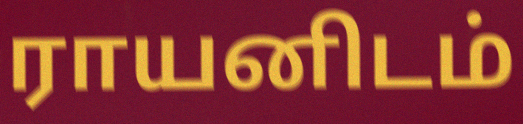
ராயனிடம்